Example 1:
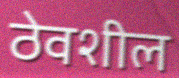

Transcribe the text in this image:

ठेवशील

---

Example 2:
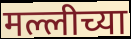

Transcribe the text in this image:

मल्लीच्या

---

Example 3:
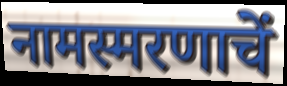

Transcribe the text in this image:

नामस्मरणाचें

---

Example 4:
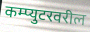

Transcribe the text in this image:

कम्प्युटरवरील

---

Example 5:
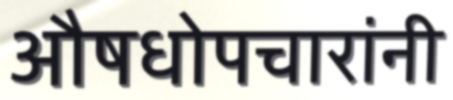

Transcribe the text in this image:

औषधोपचारांनी